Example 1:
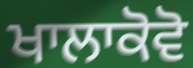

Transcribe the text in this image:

ਖਾਲਾਕੋਵੋ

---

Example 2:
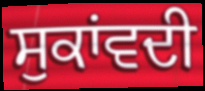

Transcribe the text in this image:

ਸੁਕਾਂਵਦੀ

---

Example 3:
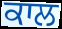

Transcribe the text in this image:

ਕਾਲ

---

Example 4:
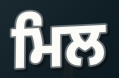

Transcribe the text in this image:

ਮਿਲ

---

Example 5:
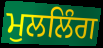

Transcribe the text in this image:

ਮੁਲਲਿੰਗ